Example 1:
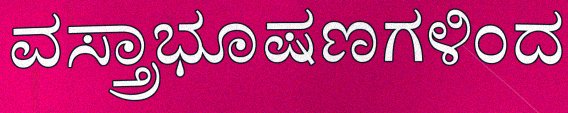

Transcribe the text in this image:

ವಸ್ತ್ರಾಭೂಷಣಗಳಿಂದ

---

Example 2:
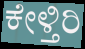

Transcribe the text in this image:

ಕೇಳ್ತಿರಿ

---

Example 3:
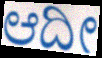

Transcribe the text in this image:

ಆದೀ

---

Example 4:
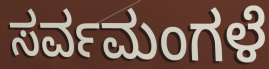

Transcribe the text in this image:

ಸರ್ವಮಂಗಳೆ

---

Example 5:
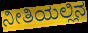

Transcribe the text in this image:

ನೀತಿಯಲ್ಲಿನ